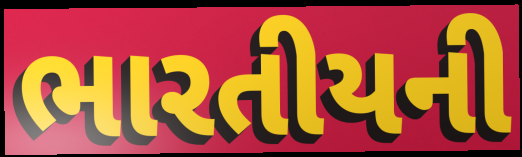
ભારતીયની